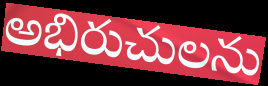
అభిరుచులను